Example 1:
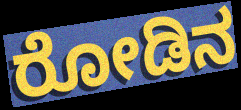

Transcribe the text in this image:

ರೋಡಿನ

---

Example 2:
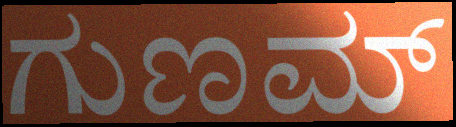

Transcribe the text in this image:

ಗುಣಮ್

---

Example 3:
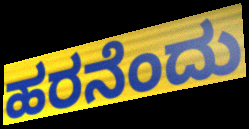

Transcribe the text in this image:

ಹರನೆಂದು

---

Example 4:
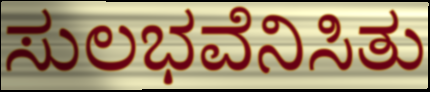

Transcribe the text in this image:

ಸುಲಭವೆನಿಸಿತು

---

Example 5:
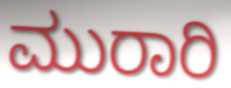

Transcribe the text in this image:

ಮುರಾರಿ